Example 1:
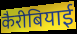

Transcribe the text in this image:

कैरीबियाई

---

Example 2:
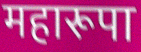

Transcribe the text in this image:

महारूपा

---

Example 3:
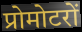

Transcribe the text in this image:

प्रोमोटरों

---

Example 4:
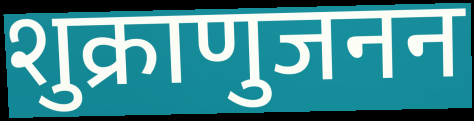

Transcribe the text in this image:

शुक्राणुजनन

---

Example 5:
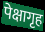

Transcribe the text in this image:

पेक्षागृह